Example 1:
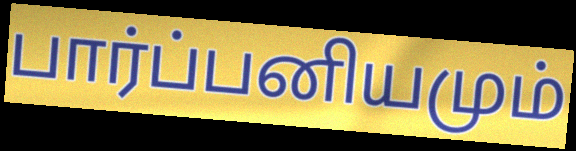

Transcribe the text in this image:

பார்ப்பனியமும்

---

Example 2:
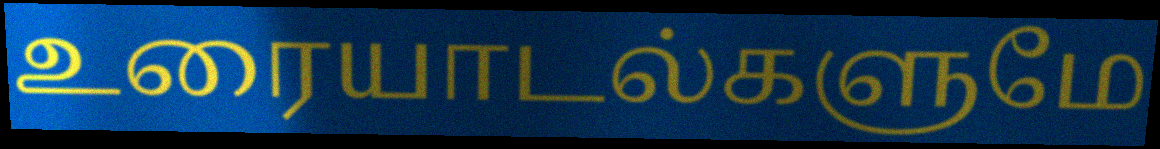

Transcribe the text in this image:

உரையாடல்களுமே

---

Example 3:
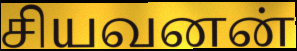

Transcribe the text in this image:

சியவனன்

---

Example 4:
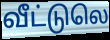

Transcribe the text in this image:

வீட்டுலெ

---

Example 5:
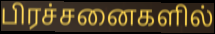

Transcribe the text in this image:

பிரச்சனைகளில்